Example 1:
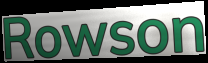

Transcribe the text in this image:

Rowson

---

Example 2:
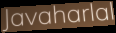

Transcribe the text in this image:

Javaharlal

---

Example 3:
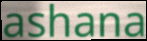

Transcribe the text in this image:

ashana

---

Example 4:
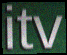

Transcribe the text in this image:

itv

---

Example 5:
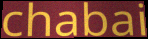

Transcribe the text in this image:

chabai